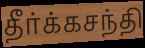
தீர்க்கசந்தி